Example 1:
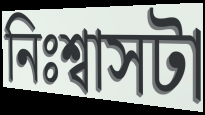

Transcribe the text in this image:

নিঃশ্বাসটা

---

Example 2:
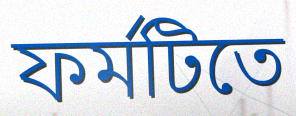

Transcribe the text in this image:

ফর্মটিতে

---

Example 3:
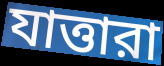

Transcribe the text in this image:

যাত্তারা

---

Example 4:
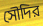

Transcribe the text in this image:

সৌদির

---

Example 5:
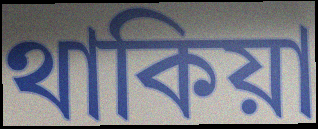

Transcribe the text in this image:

থাকিয়া